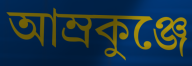
আম্রকুঞ্জে